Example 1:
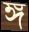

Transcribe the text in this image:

ঙ্গ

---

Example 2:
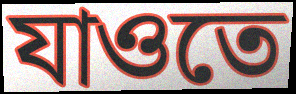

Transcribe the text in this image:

যাওতে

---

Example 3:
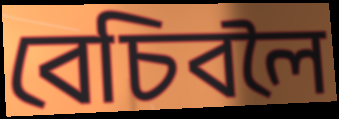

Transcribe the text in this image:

বেচিবলৈ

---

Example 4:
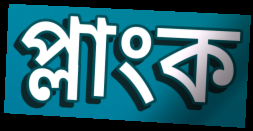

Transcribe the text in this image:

প্লাংক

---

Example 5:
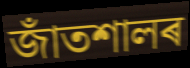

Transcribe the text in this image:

জাঁতশালৰ